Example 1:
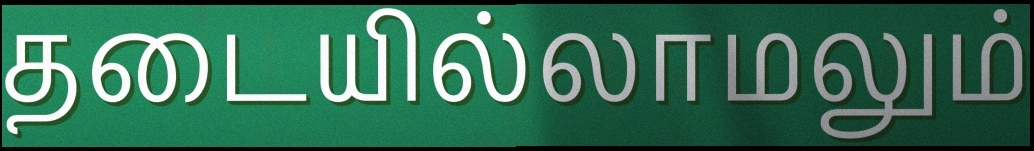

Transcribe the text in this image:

தடையில்லாமலும்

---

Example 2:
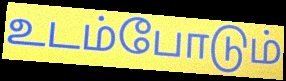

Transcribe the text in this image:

உடம்போடும்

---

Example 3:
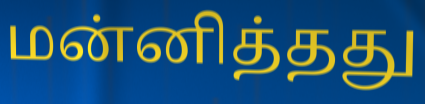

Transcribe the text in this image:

மன்னித்தது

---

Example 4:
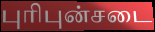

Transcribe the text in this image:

புரிபுன்சடை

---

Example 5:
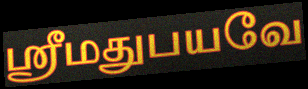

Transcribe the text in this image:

ஸ்ரீமதுபயவே